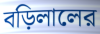
বড়িলালের